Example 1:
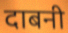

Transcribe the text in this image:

दाबनी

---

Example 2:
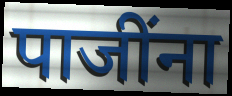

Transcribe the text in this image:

पाजींना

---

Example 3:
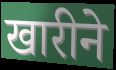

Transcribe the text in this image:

खारीने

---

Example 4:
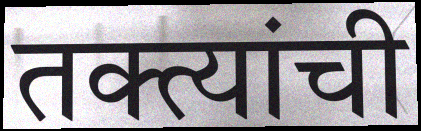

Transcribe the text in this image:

तक्त्यांची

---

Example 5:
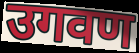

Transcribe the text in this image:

उगवण